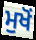
ਮੁਖੋਂ